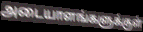
அடையாளங்களுக்குள்